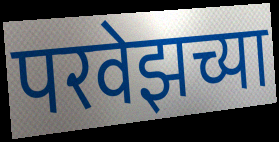
परवेझच्या